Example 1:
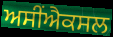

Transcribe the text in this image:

ਅਸੀਂਐਕਸਲ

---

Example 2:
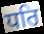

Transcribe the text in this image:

ਧਰਿ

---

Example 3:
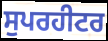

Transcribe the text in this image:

ਸੁਪਰਹੀਟਰ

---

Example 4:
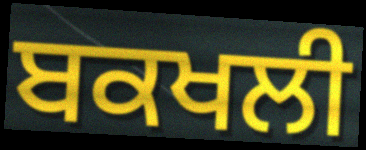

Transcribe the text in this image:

ਬਕਖਲੀ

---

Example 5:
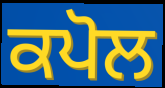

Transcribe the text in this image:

ਕਪੋਲ